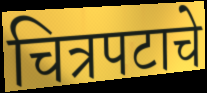
चित्रपटाचे